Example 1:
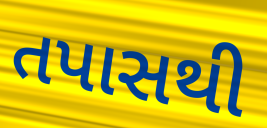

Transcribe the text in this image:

તપાસથી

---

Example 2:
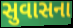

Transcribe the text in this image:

સુવાસના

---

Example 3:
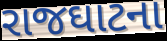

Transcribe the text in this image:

રાજઘાટના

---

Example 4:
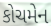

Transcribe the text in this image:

કોચમેન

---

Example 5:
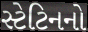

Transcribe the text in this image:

સ્ટેટિનનો